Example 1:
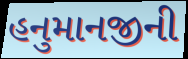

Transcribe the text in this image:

હનુમાનજીની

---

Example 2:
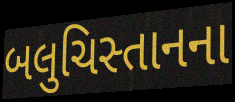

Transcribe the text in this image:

બલુચિસ્તાનના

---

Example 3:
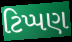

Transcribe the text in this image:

ટિપ્પણ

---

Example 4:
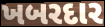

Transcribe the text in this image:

ખબરદાર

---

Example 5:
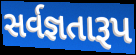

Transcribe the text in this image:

સર્વજ્ઞતારૂપ